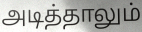
அடித்தாலும்